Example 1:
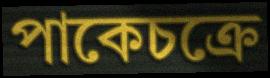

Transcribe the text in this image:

পাকেচক্রে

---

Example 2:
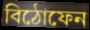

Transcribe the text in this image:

বিঠোফেন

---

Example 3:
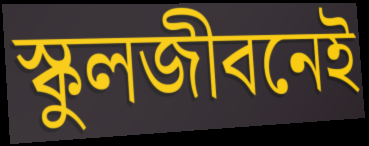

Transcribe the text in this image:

স্কুলজীবনেই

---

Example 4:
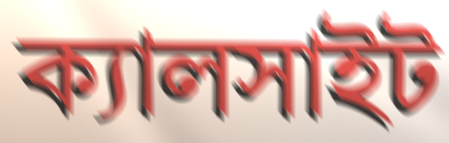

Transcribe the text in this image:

ক্যালসাইট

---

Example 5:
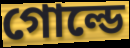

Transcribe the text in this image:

গোল্ডে